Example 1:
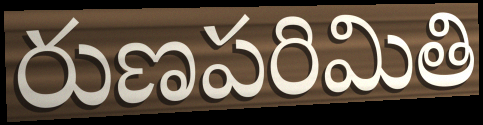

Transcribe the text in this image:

రుణపరిమితి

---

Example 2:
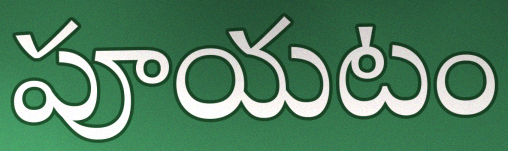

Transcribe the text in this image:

పూయటం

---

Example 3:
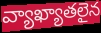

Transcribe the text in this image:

వ్యాఖ్యాతలైన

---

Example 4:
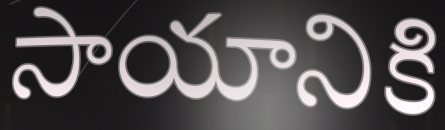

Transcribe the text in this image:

సాయానికి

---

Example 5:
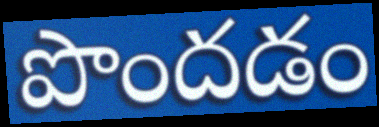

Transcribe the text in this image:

పొందడం